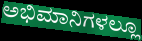
ಅಭಿಮಾನಿಗಳಲ್ಲೂ